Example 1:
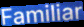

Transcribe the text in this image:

Familiar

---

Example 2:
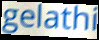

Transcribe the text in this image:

gelathi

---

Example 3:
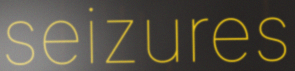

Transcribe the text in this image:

seizures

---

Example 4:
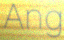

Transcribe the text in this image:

Ang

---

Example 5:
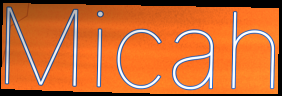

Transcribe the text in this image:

Micah